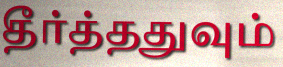
தீர்த்ததுவும்